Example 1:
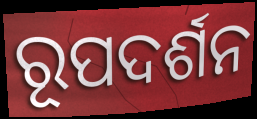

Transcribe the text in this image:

ରୂପଦର୍ଶନ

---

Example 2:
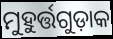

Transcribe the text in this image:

ମୁହୁର୍ତ୍ତଗୁଡ଼ାକ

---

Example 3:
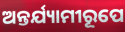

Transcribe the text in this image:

ଅନ୍ତର୍ଯ୍ୟାମୀରୂପେ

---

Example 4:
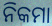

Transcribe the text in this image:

ନିକମା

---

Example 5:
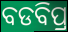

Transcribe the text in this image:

ବଡବିପ୍ର